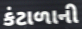
કંટાળાની